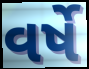
વર્ષે